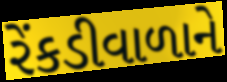
રેંકડીવાળાને